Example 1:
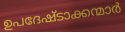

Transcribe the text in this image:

ഉപദേഷ്ടാക്കന്മാർ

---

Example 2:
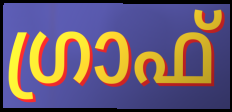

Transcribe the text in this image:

ഗ്രാഫ്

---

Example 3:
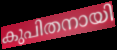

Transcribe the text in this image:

കുപിതനായി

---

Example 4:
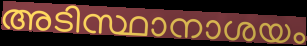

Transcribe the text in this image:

അടിസ്ഥാനാശയം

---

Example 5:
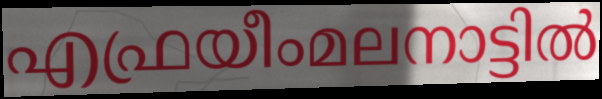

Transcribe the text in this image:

എഫ്രയീംമലനാട്ടിൽ